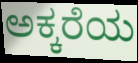
ಅಕ್ಕರೆಯ